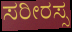
ಸರೀರಸ್ಸ